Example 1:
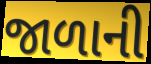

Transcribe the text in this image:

જાળાની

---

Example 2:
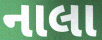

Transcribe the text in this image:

નાલા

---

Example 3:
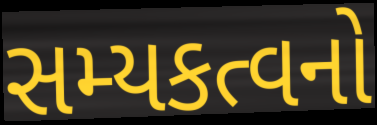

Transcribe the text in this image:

સમ્યકત્વનો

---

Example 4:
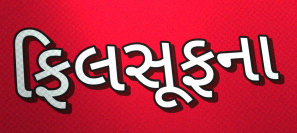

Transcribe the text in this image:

ફિલસૂફના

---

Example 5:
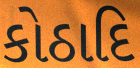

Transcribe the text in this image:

કોઠાદિ